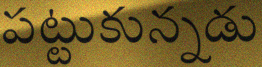
పట్టుకున్నడు